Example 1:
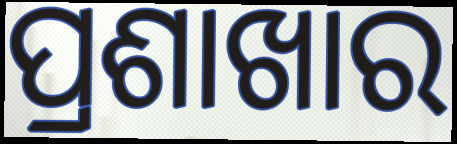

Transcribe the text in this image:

ପ୍ରଶାଖାର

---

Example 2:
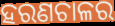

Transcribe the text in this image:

ହରଣଚାଳର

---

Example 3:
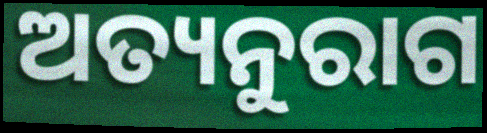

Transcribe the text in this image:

ଅତ୍ୟନୁରାଗ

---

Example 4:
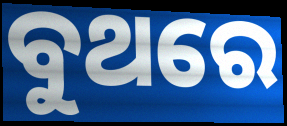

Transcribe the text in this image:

ବୁଥରେ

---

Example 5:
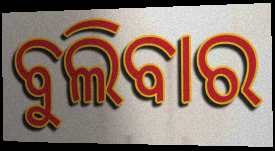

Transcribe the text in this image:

ବୁଲିବାର